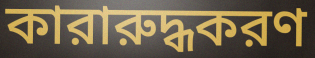
কারারুদ্ধকরণ